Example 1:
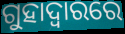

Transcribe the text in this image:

ଗୁହାଦ୍ଵାରରେ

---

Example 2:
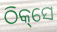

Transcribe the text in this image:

ଠିକ୍‌ସେ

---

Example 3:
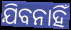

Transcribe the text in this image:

ଯିବନାହିଁ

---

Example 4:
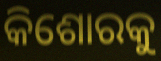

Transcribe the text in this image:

କିଶୋରକୁ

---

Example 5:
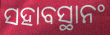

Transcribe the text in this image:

ସହାବସ୍ଥାନଂ